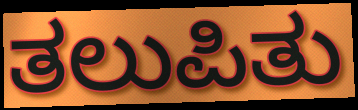
ತಲುಪಿತು